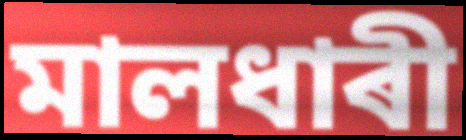
মালধাৰী